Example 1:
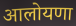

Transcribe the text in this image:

आलोयणा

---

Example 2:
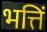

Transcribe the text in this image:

भत्तिं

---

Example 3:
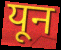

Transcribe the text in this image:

यून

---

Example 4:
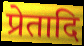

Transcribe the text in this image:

प्रेतादि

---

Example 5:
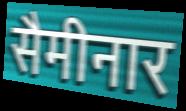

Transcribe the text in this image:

सैमीनार